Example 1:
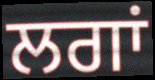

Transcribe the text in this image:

ਲਗਾਂ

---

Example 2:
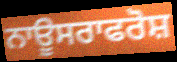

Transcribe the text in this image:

ਨਾਊਸਰਾਫਰੋਸ਼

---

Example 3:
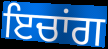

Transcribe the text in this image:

ਇਚਾਂਗ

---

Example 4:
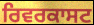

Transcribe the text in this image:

ਰਿਵਰਕਾਸਟ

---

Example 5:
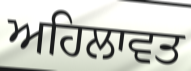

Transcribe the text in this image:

ਅਹਿਲਾਵਤ